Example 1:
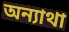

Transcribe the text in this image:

অন্যাথা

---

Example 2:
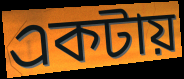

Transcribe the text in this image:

একটায়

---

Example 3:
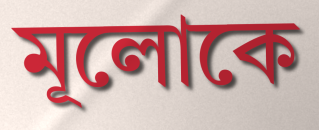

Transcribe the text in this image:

মূলোকে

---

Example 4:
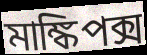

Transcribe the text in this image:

মাঙ্কিপক্স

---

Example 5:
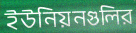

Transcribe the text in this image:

ইউনিয়নগুলির